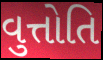
વુત્તોતિ